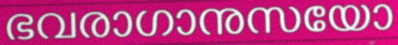
ഭവരാഗാനുസയോ